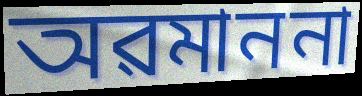
অৱমাননা